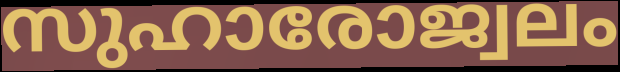
സുഹാരോജ്വലം